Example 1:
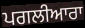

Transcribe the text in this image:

ਪਗਲੀਆਰਾ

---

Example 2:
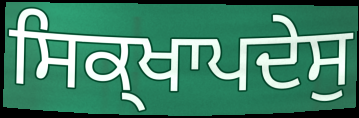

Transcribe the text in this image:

ਸਿਕ੍ਖਾਪਦੇਸੁ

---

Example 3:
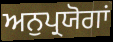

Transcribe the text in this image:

ਅਨੁਪ੍ਰਯੋਗਾਂ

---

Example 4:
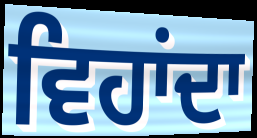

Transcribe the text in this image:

ਵਿਹਾਂਦਾ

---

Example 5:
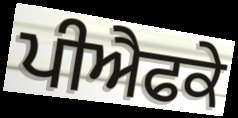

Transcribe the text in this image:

ਪੀਐਫਕੇ